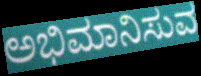
ಅಭಿಮಾನಿಸುವ